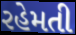
રહેમતી